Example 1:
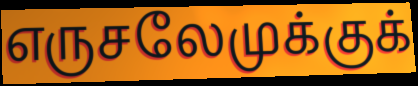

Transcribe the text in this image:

எருசலேமுக்குக்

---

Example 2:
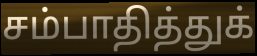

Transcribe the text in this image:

சம்பாதித்துக்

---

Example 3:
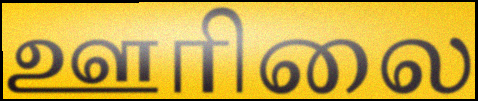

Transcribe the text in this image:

ஊரிலை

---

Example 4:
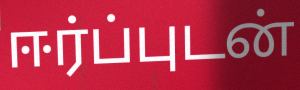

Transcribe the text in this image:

ஈர்ப்புடன்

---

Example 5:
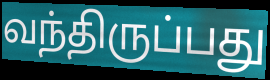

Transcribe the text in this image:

வந்திருப்பது